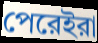
পেরেইরা